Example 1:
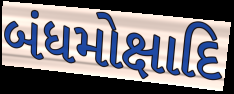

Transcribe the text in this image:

બંધમોક્ષાદિ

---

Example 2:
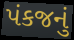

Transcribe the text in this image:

પંકજનું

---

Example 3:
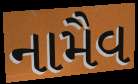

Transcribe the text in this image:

નામૈવ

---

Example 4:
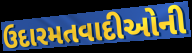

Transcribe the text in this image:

ઉદારમતવાદીઓની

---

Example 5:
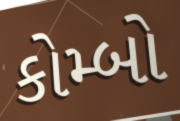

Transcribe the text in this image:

કોમ્બો